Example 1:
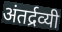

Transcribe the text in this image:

अंतर्द्रव्यी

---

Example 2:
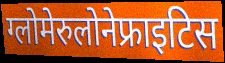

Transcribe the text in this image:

ग्लोमेरुलोनेफ्राइटिस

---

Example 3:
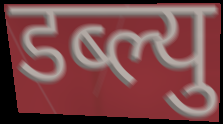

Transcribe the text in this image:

डब्ल्यु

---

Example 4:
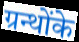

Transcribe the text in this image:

ग्रन्थोंके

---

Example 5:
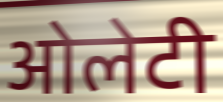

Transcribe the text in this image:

ओलेटी